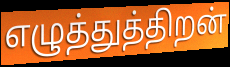
எழுத்துத்திறன்